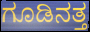
ಗೂಡಿನತ್ತ